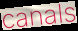
canals